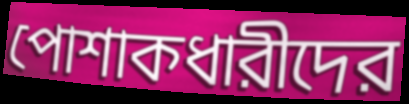
পোশাকধারীদের